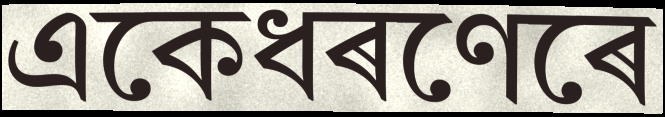
একেধৰণেৰে